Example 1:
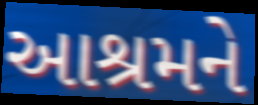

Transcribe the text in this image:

આશ્રમને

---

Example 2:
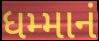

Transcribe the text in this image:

ધમ્માનં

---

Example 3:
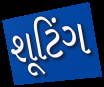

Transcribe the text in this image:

શૂટિંગ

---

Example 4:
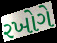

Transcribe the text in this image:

રખોગે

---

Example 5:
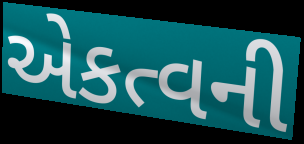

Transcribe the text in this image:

એકત્વની